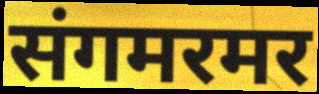
संगमरमर